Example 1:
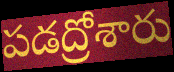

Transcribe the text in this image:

పడద్రోశారు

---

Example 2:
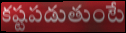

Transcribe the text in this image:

కష్టపడుతుంటే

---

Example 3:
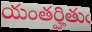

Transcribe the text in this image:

యంతర్హితుఁ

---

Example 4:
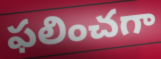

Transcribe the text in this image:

ఫలించగా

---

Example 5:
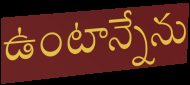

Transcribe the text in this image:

ఉంటాన్నేను